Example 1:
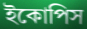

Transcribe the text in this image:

ইকোপিস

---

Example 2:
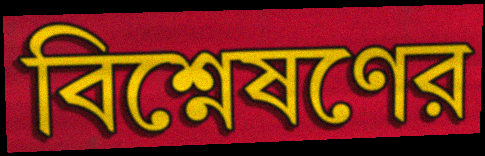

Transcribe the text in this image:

বিশ্নেষণের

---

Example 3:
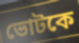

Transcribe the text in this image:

ভোটকে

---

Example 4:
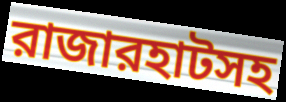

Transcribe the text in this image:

রাজারহাটসহ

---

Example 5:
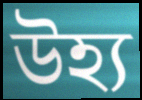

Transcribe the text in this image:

উহ্য